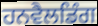
ਹਨਵੈਲਡਿੰਗ